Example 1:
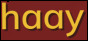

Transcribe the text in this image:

haay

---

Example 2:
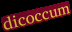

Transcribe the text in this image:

dicoccum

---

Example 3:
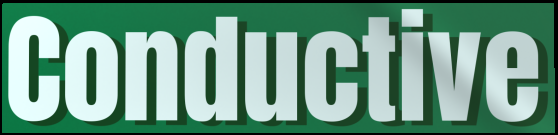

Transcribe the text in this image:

Conductive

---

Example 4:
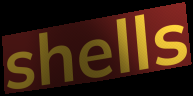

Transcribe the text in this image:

shells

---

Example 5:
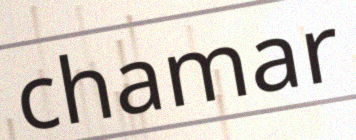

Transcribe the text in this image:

chamar